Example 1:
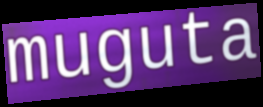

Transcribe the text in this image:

muguta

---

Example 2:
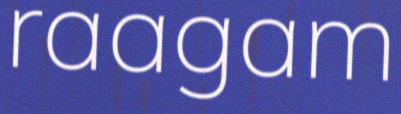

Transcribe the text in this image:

raagam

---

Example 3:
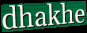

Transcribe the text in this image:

dhakhe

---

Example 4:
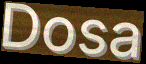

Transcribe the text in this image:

Dosa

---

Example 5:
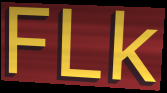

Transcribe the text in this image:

FLk